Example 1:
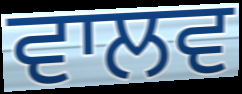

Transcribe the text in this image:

ਵਾਲਵ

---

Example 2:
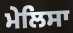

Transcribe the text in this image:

ਮੇਲਿਸਾ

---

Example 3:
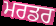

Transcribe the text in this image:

ਮਰਡਰ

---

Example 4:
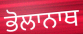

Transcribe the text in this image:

ਭੋਲਾਨਾਥ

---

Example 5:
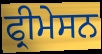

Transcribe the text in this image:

ਫ੍ਰੀਮੇਸਨ